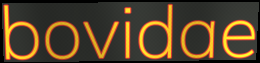
bovidae